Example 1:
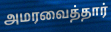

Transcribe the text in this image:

அமரவைத்தார்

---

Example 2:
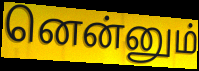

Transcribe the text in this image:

னென்னும்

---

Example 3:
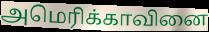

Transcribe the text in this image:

அமெரிக்காவினை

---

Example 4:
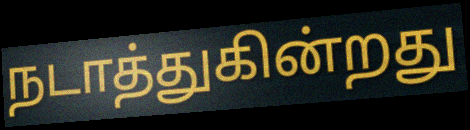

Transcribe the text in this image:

நடாத்துகின்றது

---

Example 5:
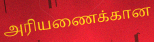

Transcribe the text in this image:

அரியணைக்கான